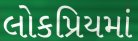
લોકપ્રિયમાં